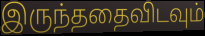
இருந்ததைவிடவும்